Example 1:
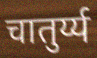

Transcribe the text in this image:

चातुर्य्य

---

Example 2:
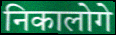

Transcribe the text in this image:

निकालोगे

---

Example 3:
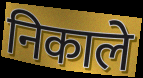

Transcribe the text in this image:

निकाले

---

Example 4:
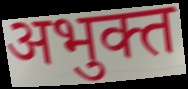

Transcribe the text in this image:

अभुक्त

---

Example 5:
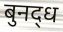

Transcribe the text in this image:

बुनद्ध